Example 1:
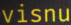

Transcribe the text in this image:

visnu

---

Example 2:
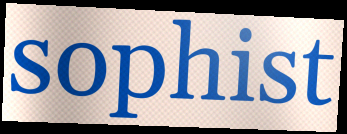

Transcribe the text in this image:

sophist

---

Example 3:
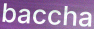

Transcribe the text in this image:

baccha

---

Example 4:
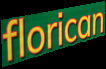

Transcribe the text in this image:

florican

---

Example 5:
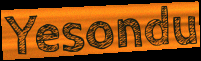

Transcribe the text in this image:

Yesondu